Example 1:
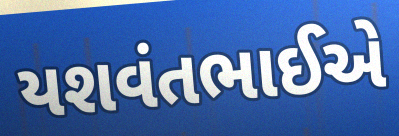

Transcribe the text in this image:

યશવંતભાઈએ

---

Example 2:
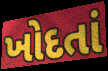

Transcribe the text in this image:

ખોદતાં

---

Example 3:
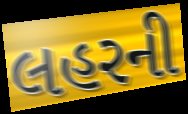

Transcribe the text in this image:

લહરની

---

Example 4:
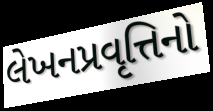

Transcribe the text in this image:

લેખનપ્રવૃત્તિનો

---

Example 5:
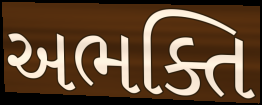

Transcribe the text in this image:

અભક્તિ